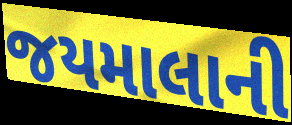
જયમાલાની